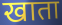
खाता